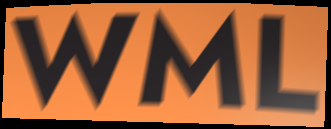
WML